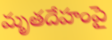
మృతదేహంపై